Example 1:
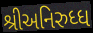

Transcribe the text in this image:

શ્રીઅનિરુધ્ધ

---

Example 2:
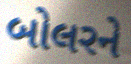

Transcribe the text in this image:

બોલરને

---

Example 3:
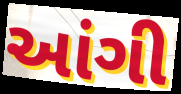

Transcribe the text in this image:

આંગી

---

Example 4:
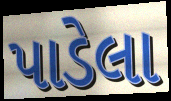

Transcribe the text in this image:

પાડેલા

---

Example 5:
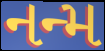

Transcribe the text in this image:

નન્મ